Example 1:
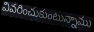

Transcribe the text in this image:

వివరించుకుంటున్నాము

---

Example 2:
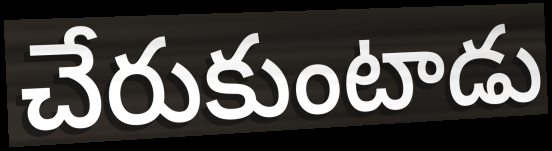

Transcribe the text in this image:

చేరుకుంటాడు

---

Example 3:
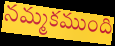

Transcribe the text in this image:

నమ్మకముంది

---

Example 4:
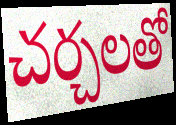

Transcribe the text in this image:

చర్చలతో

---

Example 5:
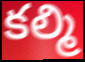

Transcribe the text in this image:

కల్మి